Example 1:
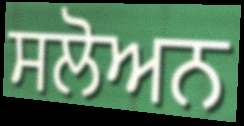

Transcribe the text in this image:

ਸਲੋਅਨ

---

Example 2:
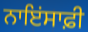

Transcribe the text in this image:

ਨਾਇਂਸਾਫ਼ੀ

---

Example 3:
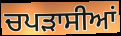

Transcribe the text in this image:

ਚਪੜਾਸੀਆਂ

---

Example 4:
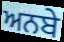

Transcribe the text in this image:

ਅਨਬੇ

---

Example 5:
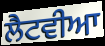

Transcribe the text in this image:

ਲੈਟਵੀਆ